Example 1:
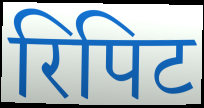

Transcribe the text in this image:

रिपिट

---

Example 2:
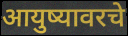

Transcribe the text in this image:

आयुष्यावरचे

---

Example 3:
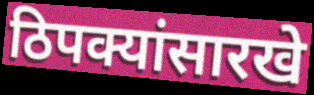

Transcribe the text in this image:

ठिपक्यांसारखे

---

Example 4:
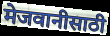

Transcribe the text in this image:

मेजवानीसाठी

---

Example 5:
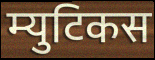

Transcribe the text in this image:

म्युटिकस